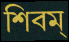
শিবম্